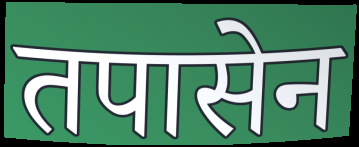
तपासेन